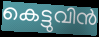
കെട്ടുവിൻ